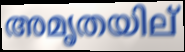
അമൃതയില്